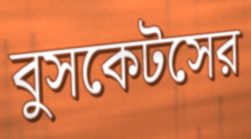
বুসকেটসের